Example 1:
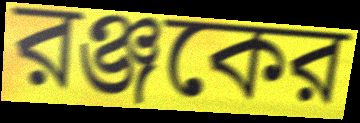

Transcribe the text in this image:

রঞ্জকের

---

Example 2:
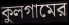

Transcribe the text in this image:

কুলগামের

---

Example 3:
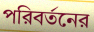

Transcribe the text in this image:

পরিবর্তনের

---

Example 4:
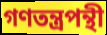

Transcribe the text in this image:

গণতন্ত্রপন্থী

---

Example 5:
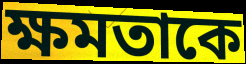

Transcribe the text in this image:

ক্ষমতাকে